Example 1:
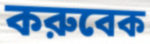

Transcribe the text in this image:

করুবেক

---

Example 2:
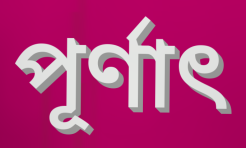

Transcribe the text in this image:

পূর্ণাৎ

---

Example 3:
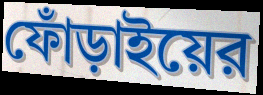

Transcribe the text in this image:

ফোঁড়াইয়ের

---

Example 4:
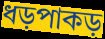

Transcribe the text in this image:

ধড়পাকড়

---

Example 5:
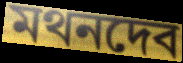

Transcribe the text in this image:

মথনদেব